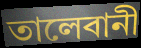
তালেবানী